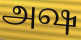
அஷ